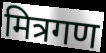
मित्रगण